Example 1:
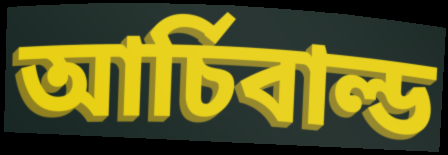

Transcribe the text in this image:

আর্চিবাল্ড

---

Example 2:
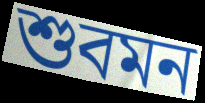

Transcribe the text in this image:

শুবমন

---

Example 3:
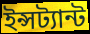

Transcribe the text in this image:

ইন্সট্যান্ট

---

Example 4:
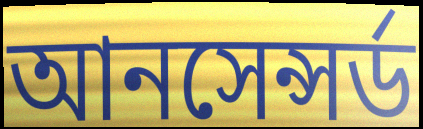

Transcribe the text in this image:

আনসেন্সর্ড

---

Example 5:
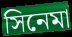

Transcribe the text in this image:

সিনেমা